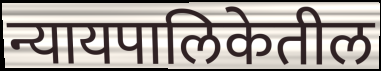
न्यायपालिकेतील